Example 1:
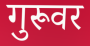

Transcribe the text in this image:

गुरूवर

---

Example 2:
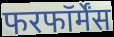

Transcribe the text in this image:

फरफॉर्मेंस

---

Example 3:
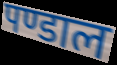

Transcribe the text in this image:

पण्डाल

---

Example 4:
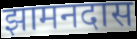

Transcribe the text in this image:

झामनदास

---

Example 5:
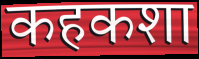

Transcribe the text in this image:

कहकशा